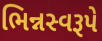
ભિન્નસ્વરૂપે